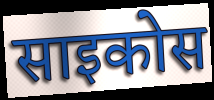
साइकोस